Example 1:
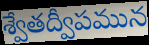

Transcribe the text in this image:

శ్వేతద్వీపమున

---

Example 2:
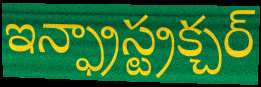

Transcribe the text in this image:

ఇన్ఫ్రాస్ట్రక్చర్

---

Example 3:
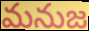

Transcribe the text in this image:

మనుజ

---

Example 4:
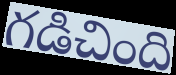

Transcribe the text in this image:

గడిచింది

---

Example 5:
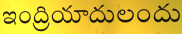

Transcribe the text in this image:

ఇంద్రియాదులందు